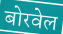
बोरवेल